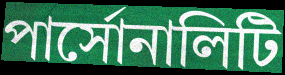
পার্সোনালিটি